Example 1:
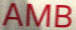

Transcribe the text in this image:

AMB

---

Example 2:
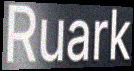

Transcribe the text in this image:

Ruark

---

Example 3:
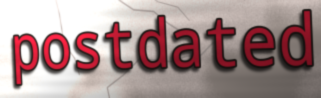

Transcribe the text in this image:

postdated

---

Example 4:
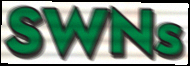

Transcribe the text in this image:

SWNs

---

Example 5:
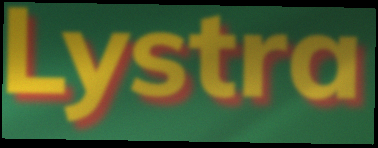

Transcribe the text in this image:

Lystra